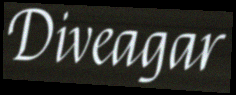
Diveagar